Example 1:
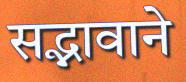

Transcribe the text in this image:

सद्भावाने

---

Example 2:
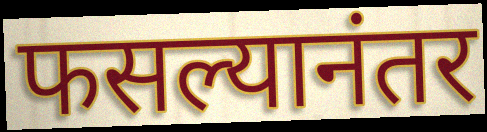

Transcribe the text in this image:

फसल्यानंतर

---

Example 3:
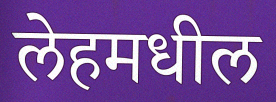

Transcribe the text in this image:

लेहमधील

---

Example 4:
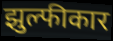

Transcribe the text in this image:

झुल्फीकार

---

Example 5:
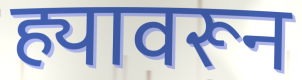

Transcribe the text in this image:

ह्यावरून